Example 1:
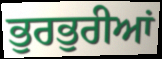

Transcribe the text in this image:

ਭੁਰਭੁਰੀਆਂ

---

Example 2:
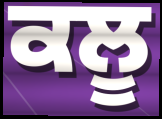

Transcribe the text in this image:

ਕਲੂ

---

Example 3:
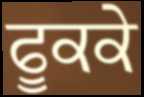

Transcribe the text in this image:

ਫੂਕਕੇ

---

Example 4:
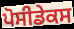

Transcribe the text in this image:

ਪੋਸੀਡੇਕਸ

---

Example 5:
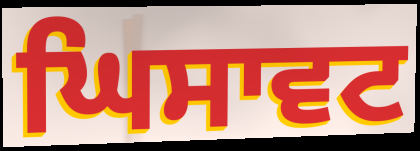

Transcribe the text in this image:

ਘਿਸਾਵਟ